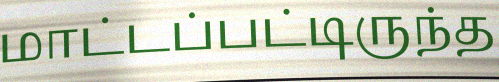
மாட்டப்பட்டிருந்த